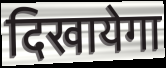
दिखायेगा